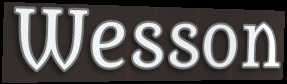
Wesson